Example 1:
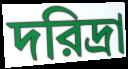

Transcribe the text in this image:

দরিদ্রা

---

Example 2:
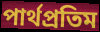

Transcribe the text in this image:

পার্থপ্রতিম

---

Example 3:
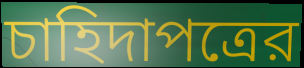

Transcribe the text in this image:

চাহিদাপত্রের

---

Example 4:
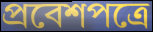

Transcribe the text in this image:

প্রবেশপত্রে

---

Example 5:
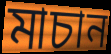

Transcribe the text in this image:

মাচান